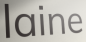
laine